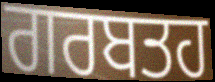
ਗਰਬਤਹ